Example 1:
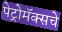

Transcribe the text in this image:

पेट्रोमॅक्सचे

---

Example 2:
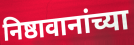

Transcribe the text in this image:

निष्ठावानांच्या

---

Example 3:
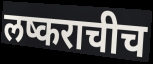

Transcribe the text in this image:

लष्कराचीच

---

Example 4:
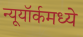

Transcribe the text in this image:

न्यूयॉर्कमध्ये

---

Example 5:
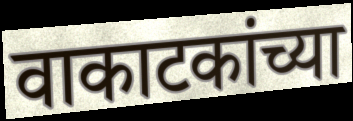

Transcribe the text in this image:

वाकाटकांच्या